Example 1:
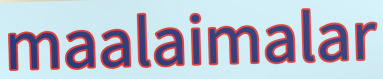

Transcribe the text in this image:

maalaimalar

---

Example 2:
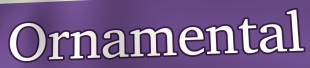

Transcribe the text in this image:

Ornamental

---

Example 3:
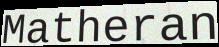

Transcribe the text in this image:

Matheran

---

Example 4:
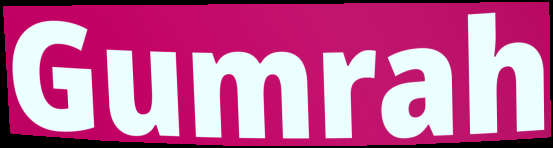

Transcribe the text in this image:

Gumrah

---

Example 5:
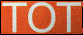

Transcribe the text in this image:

TOT